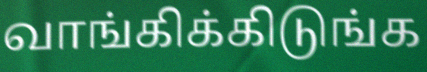
வாங்கிக்கிடுங்க